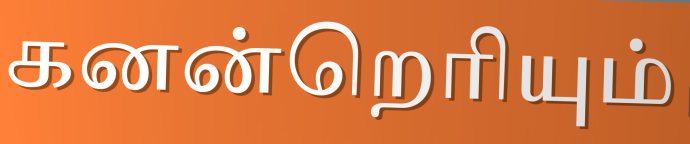
கனன்றெரியும்